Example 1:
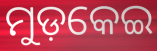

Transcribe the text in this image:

ମୁଡ଼କେଇ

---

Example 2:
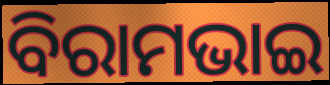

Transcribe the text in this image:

ବିରାମଭାଇ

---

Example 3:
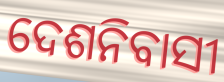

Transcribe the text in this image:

ଦେଶନିବାସୀ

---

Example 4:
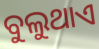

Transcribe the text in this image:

ବୁଲୁଥାଏ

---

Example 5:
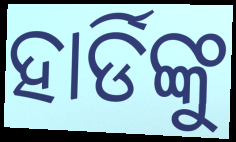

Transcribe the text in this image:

ହାର୍ଡିଙ୍କୁ